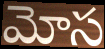
మోస